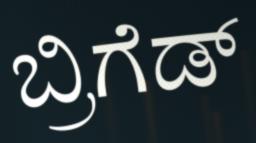
ಬ್ರಿಗೆಡ್